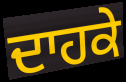
ਦਾਹਕੇ